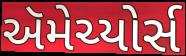
ઍમેચ્યોર્સ